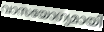
വാസയോഗ്യമായി